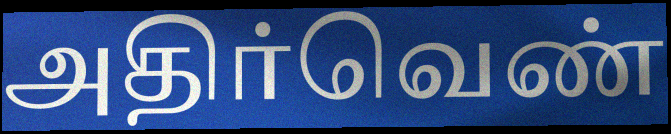
அதிர்வெண்